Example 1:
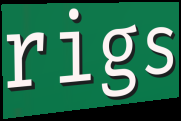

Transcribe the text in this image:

rigs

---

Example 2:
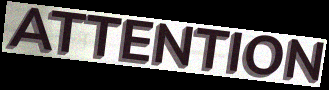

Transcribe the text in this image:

ATTENTION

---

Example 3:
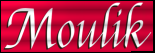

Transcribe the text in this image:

Moulik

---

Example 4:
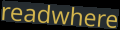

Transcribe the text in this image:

readwhere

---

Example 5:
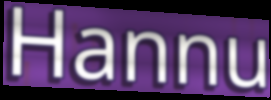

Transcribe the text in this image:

Hannu